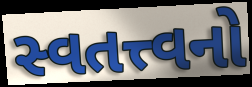
સ્વતત્ત્વનો